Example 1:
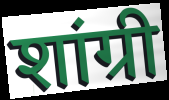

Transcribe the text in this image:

शांग्री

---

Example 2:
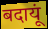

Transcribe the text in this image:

बदायूं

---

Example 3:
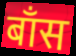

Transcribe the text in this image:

बाँस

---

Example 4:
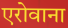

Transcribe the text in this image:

एरोवाना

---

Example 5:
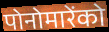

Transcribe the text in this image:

पोनोमारेंको